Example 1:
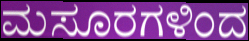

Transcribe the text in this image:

ಮಸೂರಗಳಿಂದ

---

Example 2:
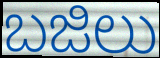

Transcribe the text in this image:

ಬಜಿಲು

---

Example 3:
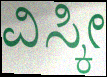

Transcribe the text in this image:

ವಿಸ್ಕೀ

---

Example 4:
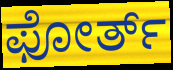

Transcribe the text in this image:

ಫೋರ್ತ್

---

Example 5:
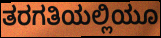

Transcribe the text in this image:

ತರಗತಿಯಲ್ಲಿಯೂ